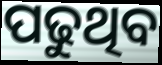
ପଢୁଥିବ